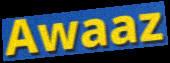
Awaaz